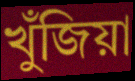
খুঁজিয়া